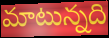
మాటున్నది